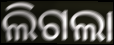
ଲିଗଲା